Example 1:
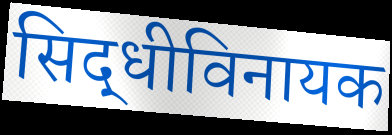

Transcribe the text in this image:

सिद्धीविनायक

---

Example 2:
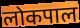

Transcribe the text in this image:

लोकपाल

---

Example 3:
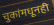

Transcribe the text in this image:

चुकांमधूनही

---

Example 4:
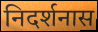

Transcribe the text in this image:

निदर्शनास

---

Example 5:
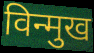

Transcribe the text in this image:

विन्मुख